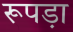
रूपड़ा